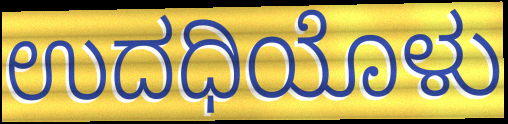
ಉದಧಿಯೊಳು